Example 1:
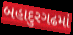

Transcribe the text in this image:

બહાદુરગઢમાં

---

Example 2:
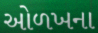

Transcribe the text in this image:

ઓળખના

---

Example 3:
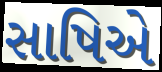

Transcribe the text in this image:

સાષિએ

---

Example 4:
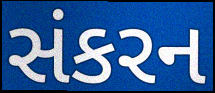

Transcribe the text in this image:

સંકરન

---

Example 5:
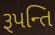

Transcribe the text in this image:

રૂપન્તિ